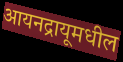
आयनद्रायूमधील